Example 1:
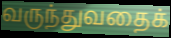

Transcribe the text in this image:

வருந்துவதைக்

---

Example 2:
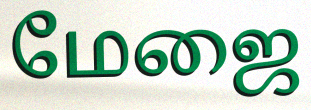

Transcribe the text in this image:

மேஜை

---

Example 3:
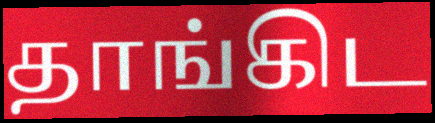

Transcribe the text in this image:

தாங்கிட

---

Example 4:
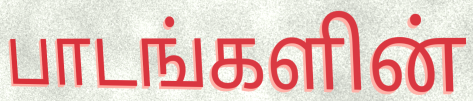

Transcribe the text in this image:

பாடங்களின்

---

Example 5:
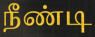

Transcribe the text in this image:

நீண்டி